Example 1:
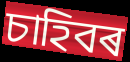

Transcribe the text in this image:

চাহিবৰ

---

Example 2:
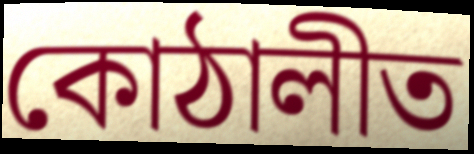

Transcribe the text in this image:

কোঠালীত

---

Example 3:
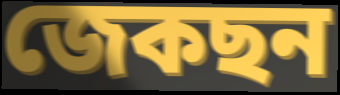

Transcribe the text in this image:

জেকছন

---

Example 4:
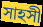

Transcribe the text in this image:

সাহসী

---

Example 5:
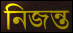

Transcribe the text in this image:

নিজন্ত